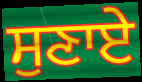
ਸੁਣਾਏ